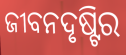
ଜୀବନଦୃଷ୍ଟିର